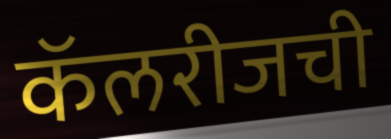
कॅलरीजची